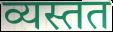
व्यस्तत